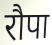
रौपा